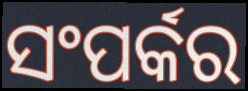
ସଂପର୍କର